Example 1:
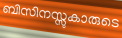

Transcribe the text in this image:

ബിസിനസ്സുകാരുടെ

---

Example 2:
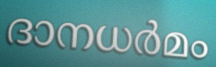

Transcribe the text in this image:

ദാനധർമം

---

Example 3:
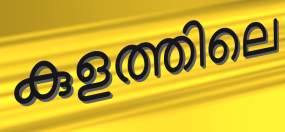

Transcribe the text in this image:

കുളത്തിലെ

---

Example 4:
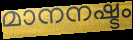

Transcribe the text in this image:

മാനനഷ്ടം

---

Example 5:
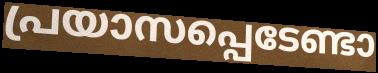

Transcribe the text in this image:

പ്രയാസപ്പെടേണ്ടാ